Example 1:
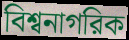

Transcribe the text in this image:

বিশ্বনাগরিক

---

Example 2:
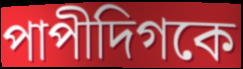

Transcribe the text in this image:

পাপীদিগকে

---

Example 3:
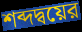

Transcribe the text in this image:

শব্দদ্বয়ের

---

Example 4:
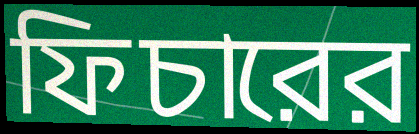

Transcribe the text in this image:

ফিচারের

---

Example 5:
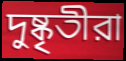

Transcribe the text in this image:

দুষ্কৃতীরা